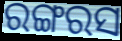
ରଙ୍ଗରସ